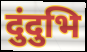
दुंदुभि